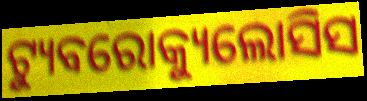
ଟ୍ୟୁବରୋକ୍ୟୁଲୋସିସ